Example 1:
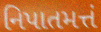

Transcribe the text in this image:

નિપાતમત્તં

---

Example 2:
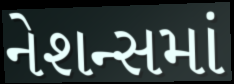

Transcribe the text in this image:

નેશન્સમાં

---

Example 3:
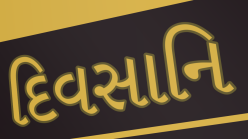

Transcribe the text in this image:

દિવસાનિ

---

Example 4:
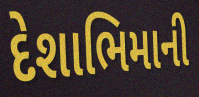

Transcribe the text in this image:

દેશાભિમાની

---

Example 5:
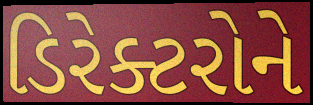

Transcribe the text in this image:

ડિરેક્ટરોને